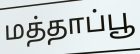
மத்தாப்பூ